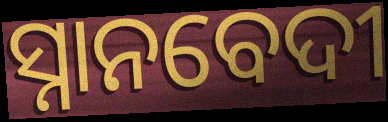
ସ୍ନାନବେଦୀ